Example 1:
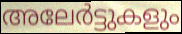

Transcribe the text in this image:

അലേർട്ടുകളും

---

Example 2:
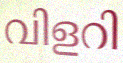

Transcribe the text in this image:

വിളറി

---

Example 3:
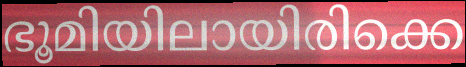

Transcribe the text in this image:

ഭൂമിയിലായിരിക്കെ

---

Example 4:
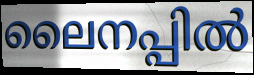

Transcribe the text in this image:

ലൈനപ്പിൽ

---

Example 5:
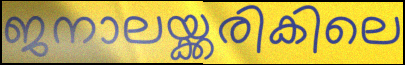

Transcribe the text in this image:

ജനാലയ്ക്കരികിലെ